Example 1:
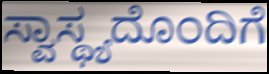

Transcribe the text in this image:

ಸ್ವಾಸ್ಥ್ಯದೊಂದಿಗೆ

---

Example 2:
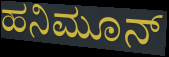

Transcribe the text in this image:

ಹನಿಮೂನ್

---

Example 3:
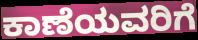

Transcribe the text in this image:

ಕಾಣೆಯವರಿಗೆ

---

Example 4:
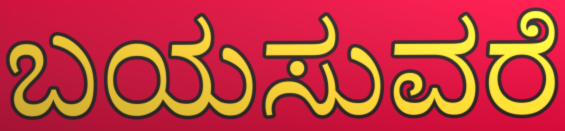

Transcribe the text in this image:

ಬಯಸುವರೆ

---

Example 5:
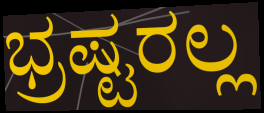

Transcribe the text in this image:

ಭ್ರಷ್ಟರಲ್ಲ